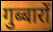
गुब्बारों